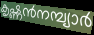
കൃഷ്ണൻനമ്പ്യാർ